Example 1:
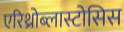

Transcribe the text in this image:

एरिथ्रोब्लास्टोसिस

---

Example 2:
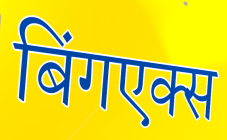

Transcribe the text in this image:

बिंगएक्स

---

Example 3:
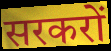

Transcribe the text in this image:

सरकरों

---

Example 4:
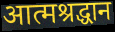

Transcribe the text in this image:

आत्मश्रद्धान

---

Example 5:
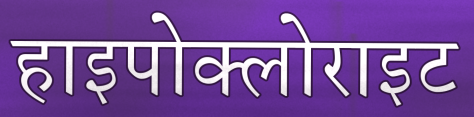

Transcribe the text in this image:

हाइपोक्लोराइट